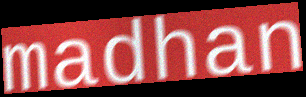
madhan